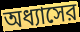
অধ্যাসের